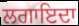
ਲਗਾਇਦਾ